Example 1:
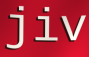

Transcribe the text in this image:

jiv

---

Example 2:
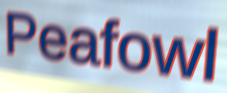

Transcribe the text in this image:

Peafowl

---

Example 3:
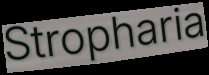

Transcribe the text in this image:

Stropharia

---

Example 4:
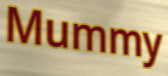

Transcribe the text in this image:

Mummy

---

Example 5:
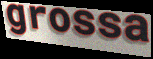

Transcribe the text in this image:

grossa